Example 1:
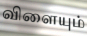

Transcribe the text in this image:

விளையும்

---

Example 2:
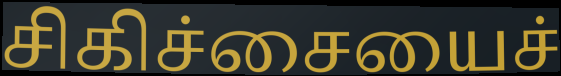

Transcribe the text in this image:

சிகிச்சையைச்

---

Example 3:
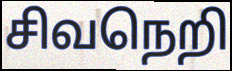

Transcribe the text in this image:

சிவநெறி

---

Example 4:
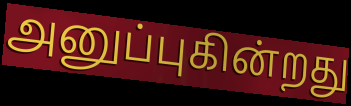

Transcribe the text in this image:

அனுப்புகின்றது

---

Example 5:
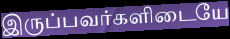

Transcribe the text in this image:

இருப்பவர்களிடையே